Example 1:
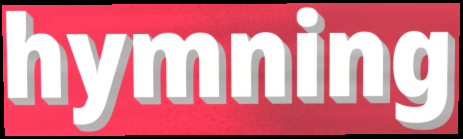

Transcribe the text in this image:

hymning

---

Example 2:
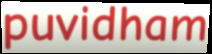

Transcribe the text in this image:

puvidham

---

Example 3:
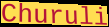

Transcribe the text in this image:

Churuli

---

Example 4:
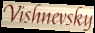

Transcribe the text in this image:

Vishnevsky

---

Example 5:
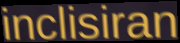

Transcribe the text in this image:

inclisiran